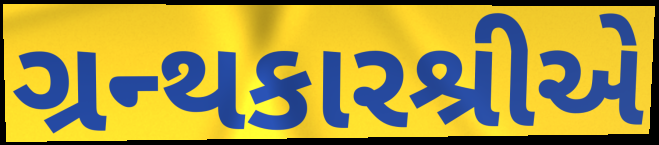
ગ્રન્થકારશ્રીએ